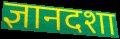
ज्ञानदशा